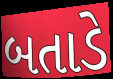
બતાડે